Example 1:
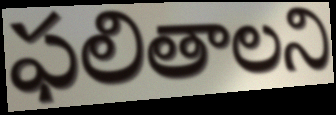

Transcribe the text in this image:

ఫలితాలని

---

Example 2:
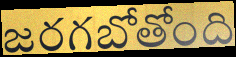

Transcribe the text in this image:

జరగబోతోంది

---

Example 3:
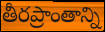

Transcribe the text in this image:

తీరప్రాంతాన్ని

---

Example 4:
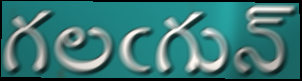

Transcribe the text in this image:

గలఁగున్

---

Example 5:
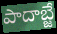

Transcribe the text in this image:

పాదాబ్జే